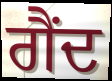
ਗੈਂਦ